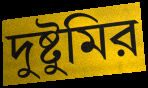
দুষ্টুমির